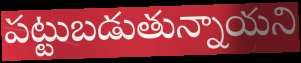
పట్టుబడుతున్నాయని